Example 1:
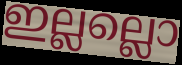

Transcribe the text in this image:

ഇല്ലല്ലൊ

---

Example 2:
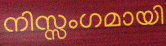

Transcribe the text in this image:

നിസ്സംഗമായി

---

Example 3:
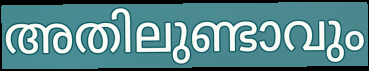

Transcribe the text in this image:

അതിലുണ്ടാവും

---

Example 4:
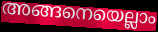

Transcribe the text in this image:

അങ്ങനെയെല്ലാം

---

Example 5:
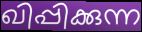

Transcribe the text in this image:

ഖിപ്പിക്കുന്ന